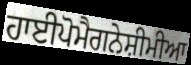
ਹਾਈਪੋਮੈਗਨੇਸ਼ੀਮੀਆ